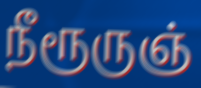
நீரூருஞ்